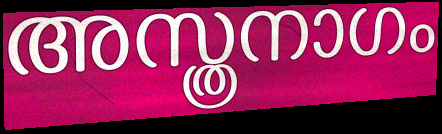
അസ്ത്രനാഗം